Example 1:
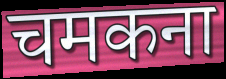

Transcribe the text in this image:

चमकना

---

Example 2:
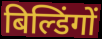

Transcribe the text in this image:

बिल्डिंगों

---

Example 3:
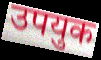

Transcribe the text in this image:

उपयुक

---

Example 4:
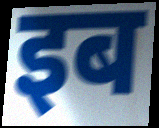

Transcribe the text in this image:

इब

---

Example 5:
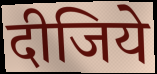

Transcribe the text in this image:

दीजिये